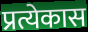
प्रत्येकास